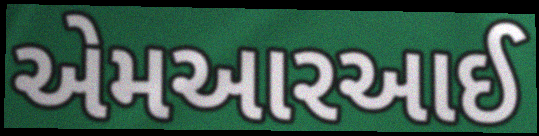
એમઆરઆઈ